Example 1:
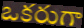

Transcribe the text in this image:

ఒకరుగా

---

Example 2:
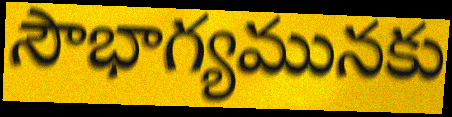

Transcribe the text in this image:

సౌభాగ్యమునకు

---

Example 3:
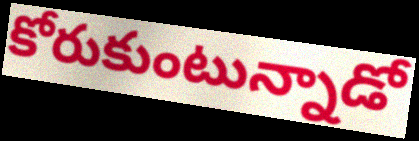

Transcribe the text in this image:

కోరుకుంటున్నాడో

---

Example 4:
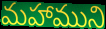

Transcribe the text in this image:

మహాముని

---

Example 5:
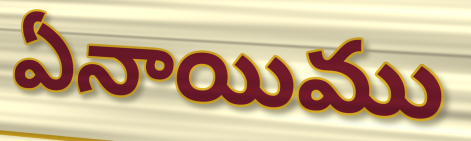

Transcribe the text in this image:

ఏనాయిము